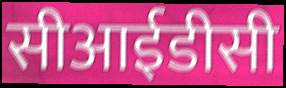
सीआईडीसी